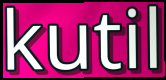
kutil